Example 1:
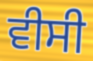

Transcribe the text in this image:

ਵੀਸੀ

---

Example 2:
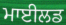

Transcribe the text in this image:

ਮਾਈਲਡ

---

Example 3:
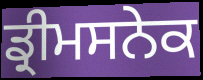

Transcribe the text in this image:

ਡ੍ਰੀਮਸਨੇਕ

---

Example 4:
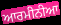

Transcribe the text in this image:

ਆਰਮੀਨੀਆ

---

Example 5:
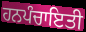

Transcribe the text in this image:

ਹਨਪੰਚਾਇਤੀ